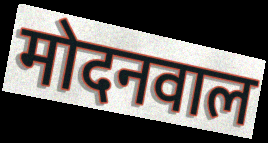
मोदनवाल